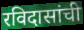
रविदासांची